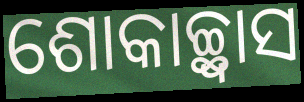
ଶୋକାଚ୍ଛ୍ୱାସ